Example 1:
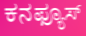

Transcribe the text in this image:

ಕನಫ್ಯೂಸ್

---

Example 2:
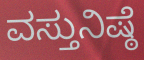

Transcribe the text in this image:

ವಸ್ತುನಿಷ್ಠೆ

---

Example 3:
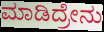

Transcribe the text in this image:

ಮಾಡಿದ್ರೇನು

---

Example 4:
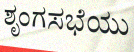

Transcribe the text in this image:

ಶೃಂಗಸಭೆಯು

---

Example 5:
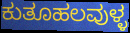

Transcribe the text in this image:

ಕುತೂಹಲವುಳ್ಳ